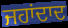
ਜਹਾਂਦਾਦ